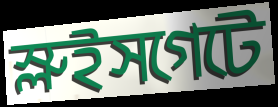
স্লুইসগেটে